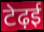
टेढ़ई